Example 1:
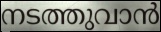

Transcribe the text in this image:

നടത്തുവാൻ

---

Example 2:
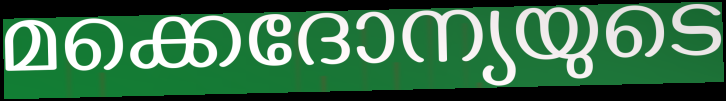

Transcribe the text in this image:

മക്കെദോന്യയുടെ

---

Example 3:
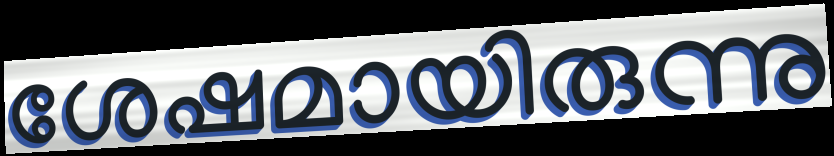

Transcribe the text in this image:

ശേഷമായിരുന്നു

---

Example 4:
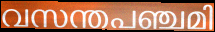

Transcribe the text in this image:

വസന്തപഞ്ചമി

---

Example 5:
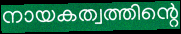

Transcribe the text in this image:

നായകത്വത്തിന്റെ